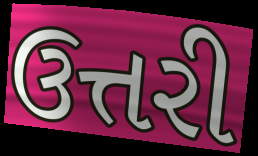
ઉત્તરી